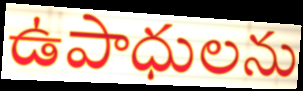
ఉపాధులను